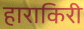
हाराकिरी